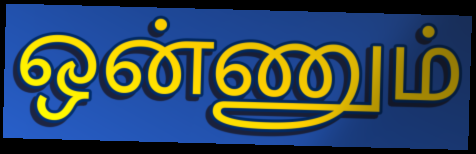
ஒன்ணும்